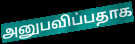
அனுபவிப்பதாக